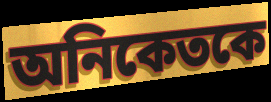
অনিকেতকে